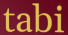
tabi